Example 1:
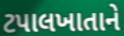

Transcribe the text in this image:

ટપાલખાતાને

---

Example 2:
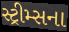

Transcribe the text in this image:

સ્ટ્રીમ્સના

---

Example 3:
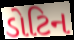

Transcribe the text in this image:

ડોટિન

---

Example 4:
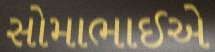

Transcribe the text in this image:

સોમાભાઈએ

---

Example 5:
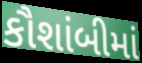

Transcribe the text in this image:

કૌશાંબીમાં